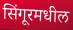
सिंगूरमधील